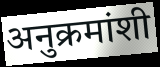
अनुक्रमांशी